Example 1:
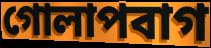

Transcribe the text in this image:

গোলাপবাগ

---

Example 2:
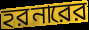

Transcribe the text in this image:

হরনারের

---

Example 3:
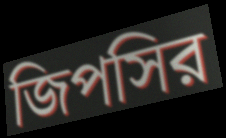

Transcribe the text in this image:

জিপসির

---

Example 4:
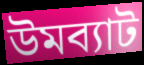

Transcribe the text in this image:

উমব্যাট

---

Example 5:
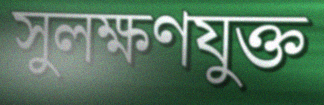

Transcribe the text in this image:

সুলক্ষণযুক্ত